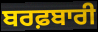
ਬਰਫ਼ਬਾਰੀ